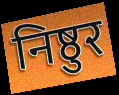
निष्ठुर